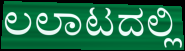
ಲಲಾಟದಲ್ಲಿ